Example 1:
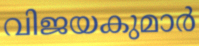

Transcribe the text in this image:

വിജയകുമാർ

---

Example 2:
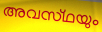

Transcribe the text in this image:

അവസ്‌ഥയും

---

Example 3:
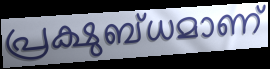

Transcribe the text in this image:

പ്രക്ഷുബ്ധമാണ്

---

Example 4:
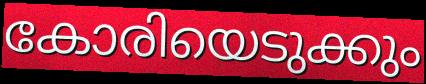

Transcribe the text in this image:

കോരിയെടുക്കും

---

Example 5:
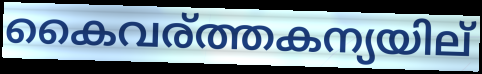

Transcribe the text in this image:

കൈവര്ത്തകന്യയില്